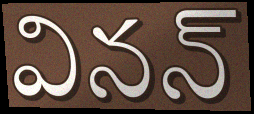
వినన్